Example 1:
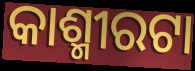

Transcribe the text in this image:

କାଶ୍ମୀରଟା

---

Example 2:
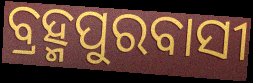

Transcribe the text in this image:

ବ୍ରହ୍ମପୁରବାସୀ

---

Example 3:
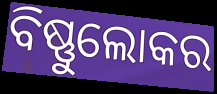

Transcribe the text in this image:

ବିଷ୍ଣୁଲୋକର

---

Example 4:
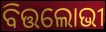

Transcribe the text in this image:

ବିତ୍ତଲୋଭୀ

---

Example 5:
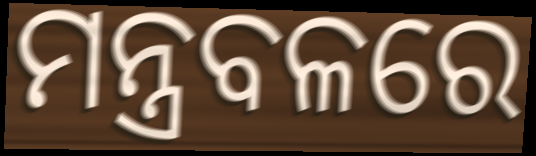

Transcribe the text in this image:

ମନ୍ତ୍ରବଳରେ